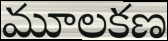
మూలకణ